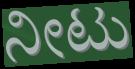
ನೀಟು